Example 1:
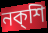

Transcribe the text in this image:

নক্‌শি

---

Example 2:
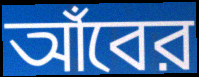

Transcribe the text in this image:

আঁবের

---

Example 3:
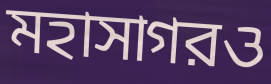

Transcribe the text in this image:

মহাসাগরও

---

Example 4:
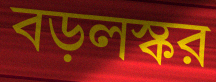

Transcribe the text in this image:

বড়লস্কর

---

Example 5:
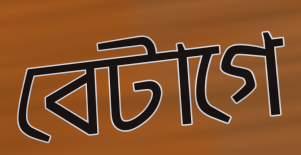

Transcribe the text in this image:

বেটাগে